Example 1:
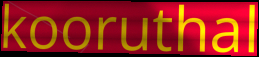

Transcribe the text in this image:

kooruthal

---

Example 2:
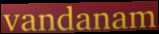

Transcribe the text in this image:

vandanam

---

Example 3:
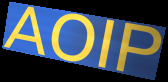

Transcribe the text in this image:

AOIP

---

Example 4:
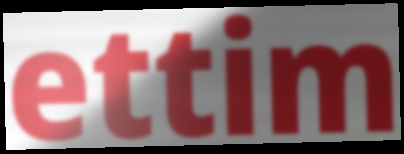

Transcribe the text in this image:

ettim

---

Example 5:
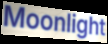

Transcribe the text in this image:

Moonlight